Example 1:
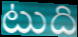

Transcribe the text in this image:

టుది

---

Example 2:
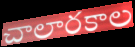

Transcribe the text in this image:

చాలారకాల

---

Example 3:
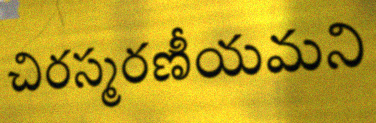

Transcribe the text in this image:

చిరస్మరణీయమని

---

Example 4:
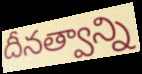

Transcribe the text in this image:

దీనత్వాన్ని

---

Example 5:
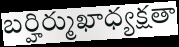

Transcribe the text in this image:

బర్హిర్ముఖాధ్యక్షతా